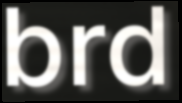
brd